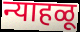
न्याहळू